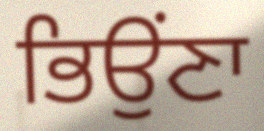
ਭਿਉਂਣਾ